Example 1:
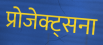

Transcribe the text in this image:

प्रोजेक्ट्सना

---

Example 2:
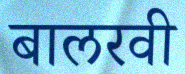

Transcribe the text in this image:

बालरवी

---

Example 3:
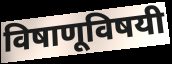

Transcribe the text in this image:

विषाणूविषयी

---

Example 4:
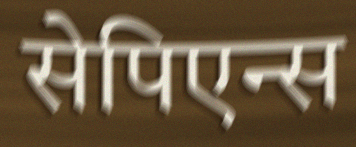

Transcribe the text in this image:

सेपिएन्स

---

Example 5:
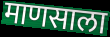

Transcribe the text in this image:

माणसाला